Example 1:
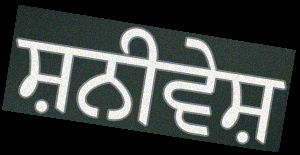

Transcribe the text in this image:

ਸ਼ਨੀਵੇਸ਼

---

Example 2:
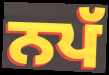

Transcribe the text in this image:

ਨਪੱ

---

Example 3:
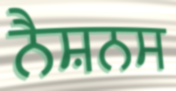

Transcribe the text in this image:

ਨੈਸ਼ਨਸ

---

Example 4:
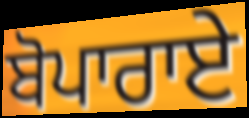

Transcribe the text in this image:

ਬੋਪਾਰਾਏ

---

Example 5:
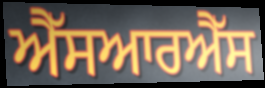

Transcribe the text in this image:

ਐੱਸਆਰਐੱਸ